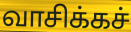
வாசிக்கச்